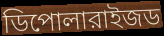
ডিপোলারাইজড